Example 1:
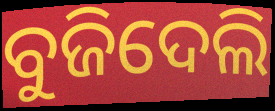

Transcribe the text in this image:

ବୁଜିଦେଲି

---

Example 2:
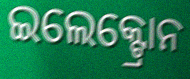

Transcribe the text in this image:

ଇଲେକ୍ଟ୍ରୋନ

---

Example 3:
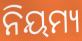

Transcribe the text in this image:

ନିୟମ୍ୟ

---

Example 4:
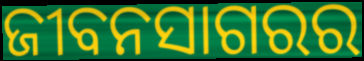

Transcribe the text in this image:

ଜୀବନସାଗରର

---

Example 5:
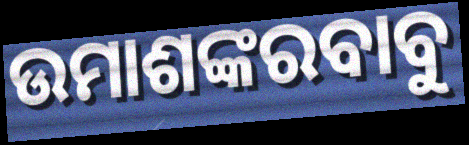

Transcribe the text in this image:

ଉମାଶଙ୍କରବାବୁ